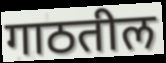
गाठतील